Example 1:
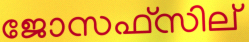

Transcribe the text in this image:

ജോസഫ്സില്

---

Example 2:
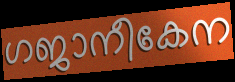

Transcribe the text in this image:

ഗജാനീകേന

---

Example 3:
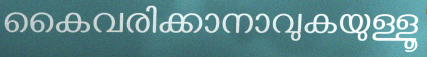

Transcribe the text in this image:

കൈവരിക്കാനാവുകയുള്ളൂ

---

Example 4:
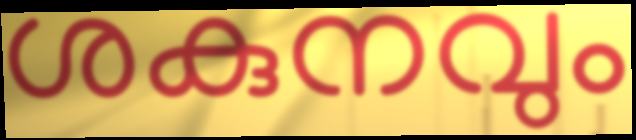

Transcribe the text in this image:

ശകുനവും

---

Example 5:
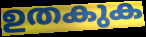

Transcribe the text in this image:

ഉതകുക